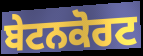
ਬੇਟਨਕੋਰਟ